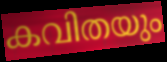
കവിതയും